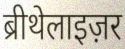
ब्रीथेलाइज़र